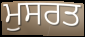
ਮੁਸਰਤ